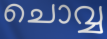
ചൊവ്വ